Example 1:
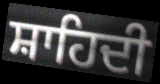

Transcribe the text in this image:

ਸ਼ਾਹਿਦੀ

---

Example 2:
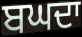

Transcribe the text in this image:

ਬਘਦਾ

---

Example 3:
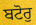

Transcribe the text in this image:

ਬਟੋਰੁ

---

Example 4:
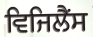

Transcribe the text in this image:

ਵਿਜਿਲੈਂਸ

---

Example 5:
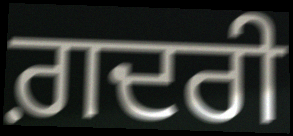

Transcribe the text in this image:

ਗ਼ਦਰੀ